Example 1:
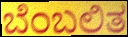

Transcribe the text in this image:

ಬೆಂಬಲಿತ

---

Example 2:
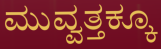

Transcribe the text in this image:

ಮುವ್ವತ್ತಕ್ಕೂ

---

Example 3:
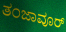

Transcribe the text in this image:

ತಂಜಾವೂರ್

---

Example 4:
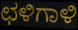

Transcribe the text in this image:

ಛಳಿಗಾಳಿ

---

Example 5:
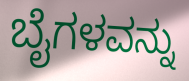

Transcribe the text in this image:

ಬೈಗಳವನ್ನು